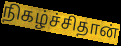
நிகழ்ச்சிதான்